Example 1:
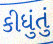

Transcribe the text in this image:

કીધુંતું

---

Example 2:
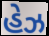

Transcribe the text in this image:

હેઝ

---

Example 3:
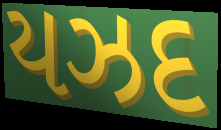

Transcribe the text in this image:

યઝદ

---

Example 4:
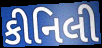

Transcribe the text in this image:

કીનિલી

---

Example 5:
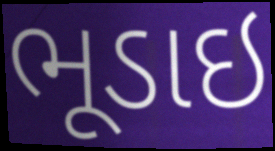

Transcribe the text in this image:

ભૂડાઇ